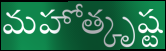
మహోత్కృష్ట